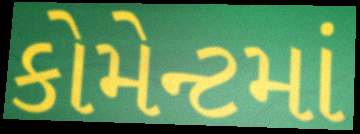
કોમેન્ટમાં